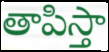
తాపిస్తా